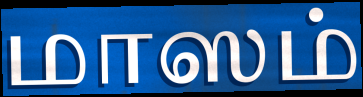
மாஸம்